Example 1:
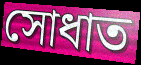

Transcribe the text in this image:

সোধাত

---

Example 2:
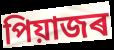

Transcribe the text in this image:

পিয়াজৰ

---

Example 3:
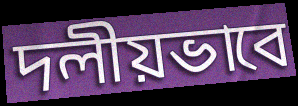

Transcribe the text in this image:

দলীয়ভাবে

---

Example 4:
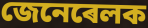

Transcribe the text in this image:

জেনেৰেলক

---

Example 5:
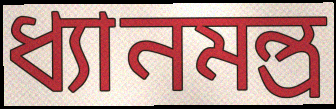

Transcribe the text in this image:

ধ্যানমন্ত্ৰ